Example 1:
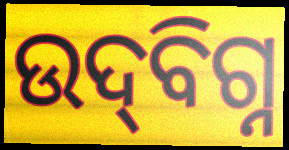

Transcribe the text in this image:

ଉଦ୍‌ବିଗ୍ନ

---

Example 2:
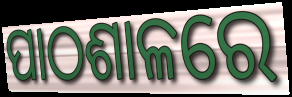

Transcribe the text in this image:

ପାଠଶାଳରେ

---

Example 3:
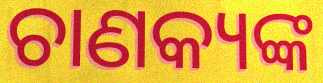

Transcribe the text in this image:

ଚାଣକ୍ୟଙ୍କ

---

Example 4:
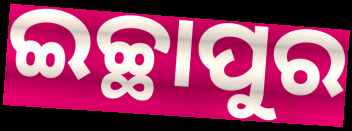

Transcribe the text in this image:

ଇଚ୍ଛାପୁର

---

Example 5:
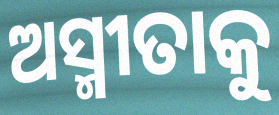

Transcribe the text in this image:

ଅସ୍ମୀତାକୁ